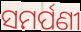
ସମର୍ପଣୀ